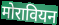
मोरावियन